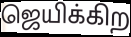
ஜெயிக்கிற